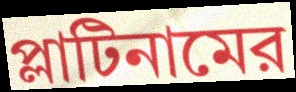
প্লাটিনামের